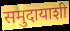
समुदायाशी